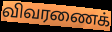
விவரணைக்